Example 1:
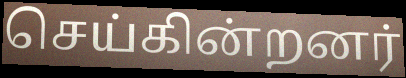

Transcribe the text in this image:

செய்கின்றனர்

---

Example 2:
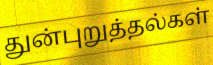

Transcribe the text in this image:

துன்புறுத்தல்கள்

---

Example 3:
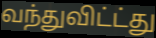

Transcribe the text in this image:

வந்துவிட்ட்து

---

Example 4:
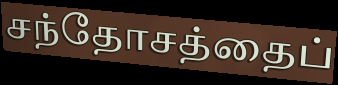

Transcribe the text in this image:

சந்தோசத்தைப்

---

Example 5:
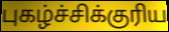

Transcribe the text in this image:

புகழ்ச்சிக்குரிய